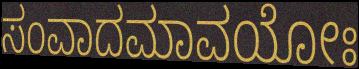
ಸಂವಾದಮಾವಯೋಃ